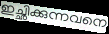
ഇച്ഛിക്കുന്നവനെ